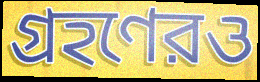
গ্রহণেরও